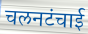
चलनटंचाई